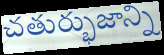
చతుర్భుజాన్ని